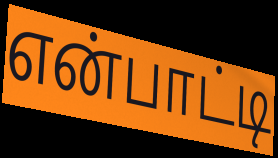
என்பாட்டி